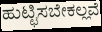
ಹುಟ್ಟಿಸಬೇಕಲ್ಲವೆ